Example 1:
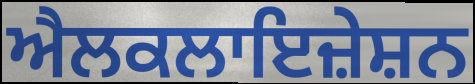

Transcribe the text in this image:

ਐਲਕਲਾਇਜ਼ੇਸ਼ਨ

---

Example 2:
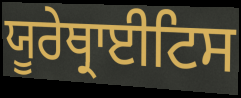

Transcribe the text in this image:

ਯੂਰੇਥ੍ਰਾਈਟਿਸ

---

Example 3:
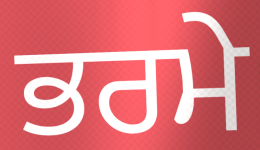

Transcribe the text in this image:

ਭਰਮੇ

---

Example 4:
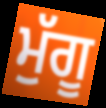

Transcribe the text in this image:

ਮੁੱਗੂ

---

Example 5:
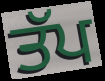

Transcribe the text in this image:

ਤੱਪ